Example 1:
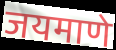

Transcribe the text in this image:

जयमाणे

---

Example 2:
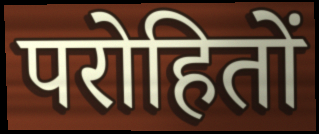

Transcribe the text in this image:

परोहितों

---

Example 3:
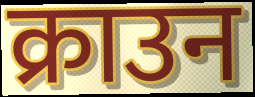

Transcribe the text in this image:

क्राउन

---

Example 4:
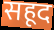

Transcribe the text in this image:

सहूद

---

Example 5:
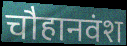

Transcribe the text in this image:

चौहानवंश